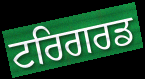
ਟਰਿਗਰਡ